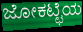
ಜೋಕಟ್ಟೆಯ